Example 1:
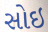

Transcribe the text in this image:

સોઇ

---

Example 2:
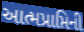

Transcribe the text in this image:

આત્મપ્રાપ્તિની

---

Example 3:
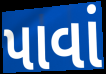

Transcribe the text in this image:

પાવાં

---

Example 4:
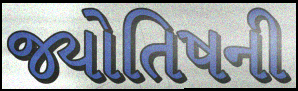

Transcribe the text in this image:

જ્યોતિષની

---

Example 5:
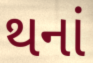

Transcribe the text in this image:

થનાં